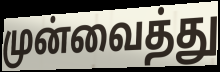
முன்வைத்து